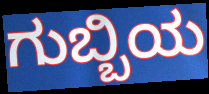
ಗುಬ್ಬಿಯ